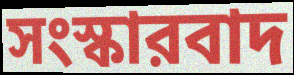
সংস্কারবাদ